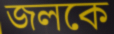
জলকে